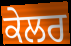
ਕੇਲਰ